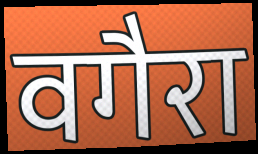
वगैरा